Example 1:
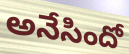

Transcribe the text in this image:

అనేసిందో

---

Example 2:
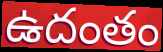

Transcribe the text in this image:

ఉదంతం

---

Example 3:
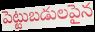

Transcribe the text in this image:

పెట్టుబడులపైన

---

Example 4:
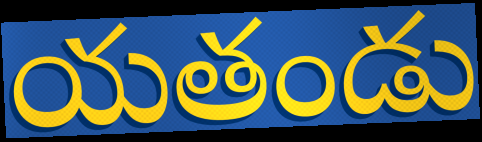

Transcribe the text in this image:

యతండు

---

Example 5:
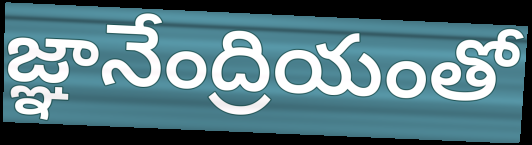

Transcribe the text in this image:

జ్ఞానేంద్రియంతో